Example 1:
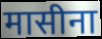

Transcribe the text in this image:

मासीना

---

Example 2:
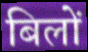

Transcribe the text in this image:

बिलों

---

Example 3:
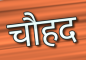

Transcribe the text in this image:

चौहद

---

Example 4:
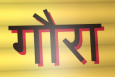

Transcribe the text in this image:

गौरा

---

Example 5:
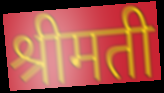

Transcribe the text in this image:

श्रीमती